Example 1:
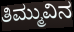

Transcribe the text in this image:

ತಿಮ್ಮುವಿನ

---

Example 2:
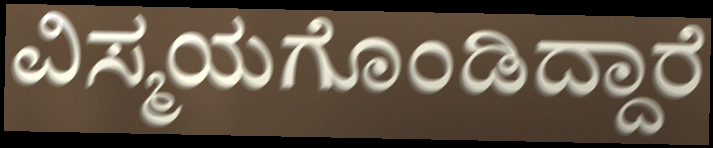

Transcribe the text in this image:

ವಿಸ್ಮಯಗೊಂಡಿದ್ದಾರೆ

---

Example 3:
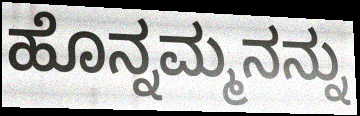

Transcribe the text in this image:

ಹೊನ್ನಮ್ಮನನ್ನು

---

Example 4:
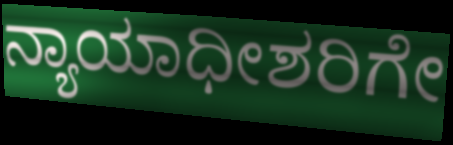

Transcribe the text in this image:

ನ್ಯಾಯಾಧೀಶರಿಗೇ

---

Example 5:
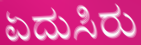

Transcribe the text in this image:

ಏದುಸಿರು